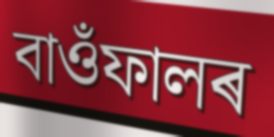
বাওঁফালৰ